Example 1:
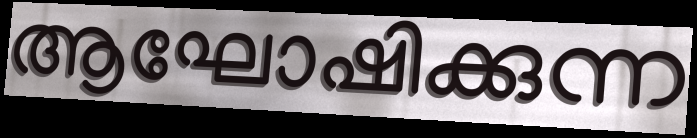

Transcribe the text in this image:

ആഘോഷിക്കുന്ന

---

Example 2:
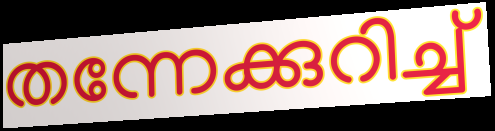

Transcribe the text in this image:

തന്നേക്കുറിച്ച്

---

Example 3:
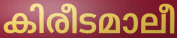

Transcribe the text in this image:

കിരീടമാലീ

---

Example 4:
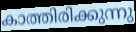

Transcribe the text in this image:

കാത്തിരിക്കുന്നു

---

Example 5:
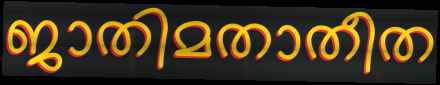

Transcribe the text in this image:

ജാതിമതാതീത